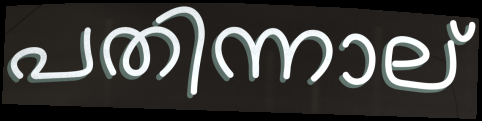
പതിന്നാല്